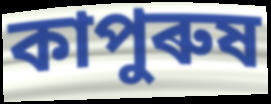
কাপুৰুষ